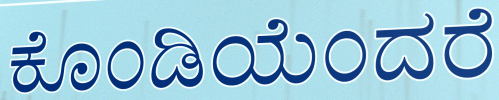
ಕೊಂಡಿಯೆಂದರೆ